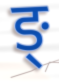
ङ्